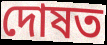
দোষত